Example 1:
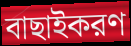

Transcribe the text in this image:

বাছাইকরণ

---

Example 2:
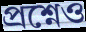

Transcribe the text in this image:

প্রশ্নেও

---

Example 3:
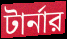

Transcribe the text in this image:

টার্নার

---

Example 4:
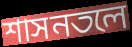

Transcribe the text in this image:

শাসনতলে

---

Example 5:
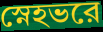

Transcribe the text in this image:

স্নেহভরে